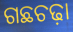
ଗଛଚଢ଼ା